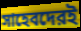
সাহেবদেরই